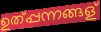
ഉത്പ്പന്നങ്ങള്